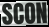
SCON